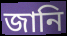
জানি